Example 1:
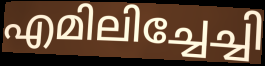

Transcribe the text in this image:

എമിലിച്ചേച്ചി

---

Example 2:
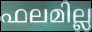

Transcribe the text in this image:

ഫലമില്ല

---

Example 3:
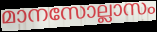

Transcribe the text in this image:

മാനസോല്ലാസം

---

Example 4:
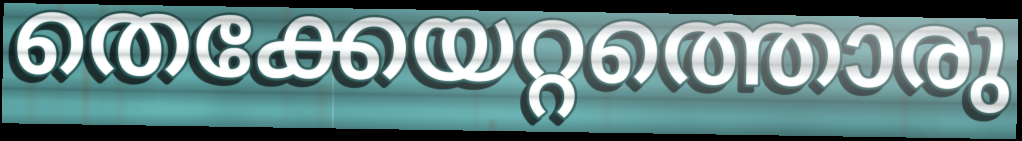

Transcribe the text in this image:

തെക്കേയറ്റത്തൊരു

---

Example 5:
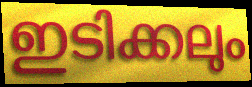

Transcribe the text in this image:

ഇടിക്കലും